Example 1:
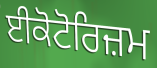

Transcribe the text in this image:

ਈਕੋਟੋਰਿਜ਼ਮ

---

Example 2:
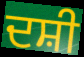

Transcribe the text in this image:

ਦਸ਼ੀ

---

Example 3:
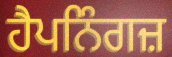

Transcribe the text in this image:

ਹੈਪਨਿੰਗਜ਼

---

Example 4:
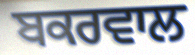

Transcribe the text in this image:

ਬਕਰਵਾਲ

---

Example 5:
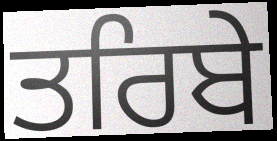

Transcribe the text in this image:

ਤਰਿਬੇ